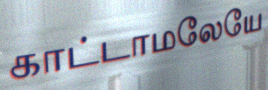
காட்டாமலேயே